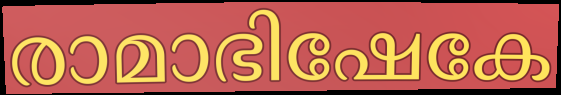
രാമാഭിഷേകേ